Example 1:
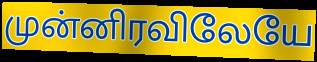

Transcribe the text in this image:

முன்னிரவிலேயே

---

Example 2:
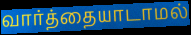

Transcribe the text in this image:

வார்த்தையாடாமல்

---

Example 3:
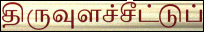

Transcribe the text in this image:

திருவுளச்சீட்டுப்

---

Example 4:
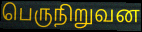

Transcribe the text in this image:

பெருநிறுவன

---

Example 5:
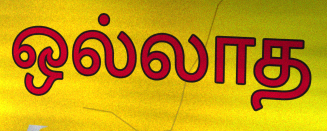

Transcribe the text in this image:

ஒல்லாத